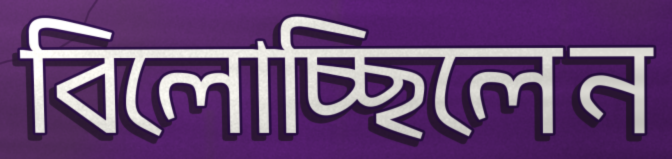
বিলোচ্ছিলেন